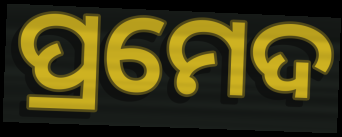
ପ୍ରମେଦ